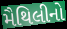
મૈથિલીનો